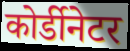
कोर्डीनेटर